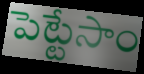
పెట్టేసాం